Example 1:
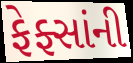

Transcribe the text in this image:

ફેફ્સાંની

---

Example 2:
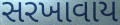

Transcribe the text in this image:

સરખાવાય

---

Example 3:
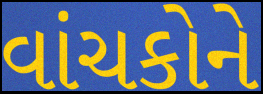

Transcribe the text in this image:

વાંચકોને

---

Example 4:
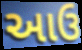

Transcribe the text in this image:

આઉ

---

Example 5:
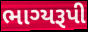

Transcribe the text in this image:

ભાગ્યરૂપી